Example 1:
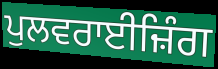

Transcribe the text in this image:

ਪੁਲਵਰਾਈਜ਼ਿੰਗ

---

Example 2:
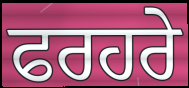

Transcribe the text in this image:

ਫਰਹਰੇ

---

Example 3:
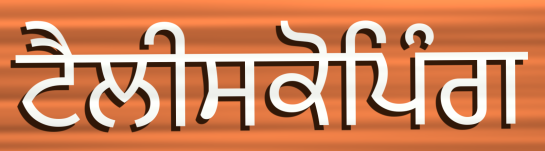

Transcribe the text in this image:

ਟੈਲੀਸਕੋਪਿੰਗ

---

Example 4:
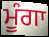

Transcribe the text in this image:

ਮੂੰਗਾ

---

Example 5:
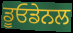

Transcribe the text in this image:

ਡੂਓਡੇਨਲ